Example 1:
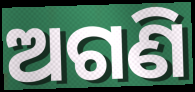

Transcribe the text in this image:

ଅଗଣି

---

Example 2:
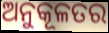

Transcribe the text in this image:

ଅନୁକୂଳତର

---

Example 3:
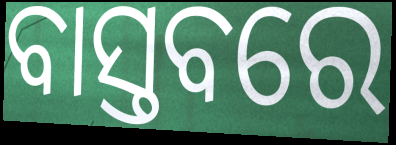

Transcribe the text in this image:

ବାସ୍ତବରେ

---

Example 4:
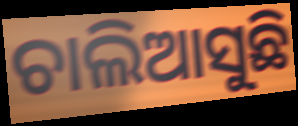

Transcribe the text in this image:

ଚାଲିଆସୁଛି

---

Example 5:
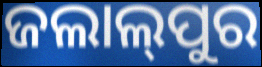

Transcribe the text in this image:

ଜଲାଲ୍‍ପୁର